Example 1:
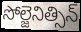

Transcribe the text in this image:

సోల్జెనిత్సిన్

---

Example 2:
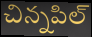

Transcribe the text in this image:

చిన్నపిల్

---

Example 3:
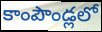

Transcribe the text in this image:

కాంపౌండ్లలో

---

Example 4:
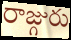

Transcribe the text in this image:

రాజ్గురు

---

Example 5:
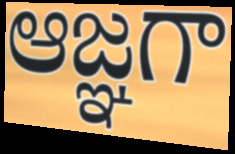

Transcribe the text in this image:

ఆజ్ఞగా